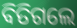
ବିତିଗଲେ